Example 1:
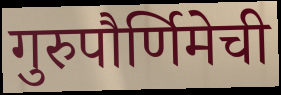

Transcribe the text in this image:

गुरुपौर्णिमेची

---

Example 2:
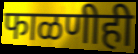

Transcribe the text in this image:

फाळणीही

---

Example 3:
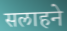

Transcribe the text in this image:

सलाहने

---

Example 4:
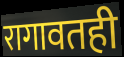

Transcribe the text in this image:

रागावतही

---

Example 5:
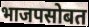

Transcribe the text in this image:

भाजपसोबत